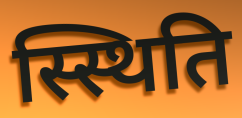
स्स्थिति